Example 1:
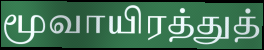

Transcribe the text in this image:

மூவாயிரத்துத்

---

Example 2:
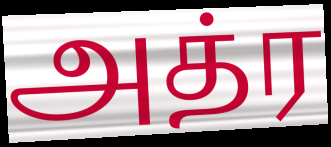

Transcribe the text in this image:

அத்ர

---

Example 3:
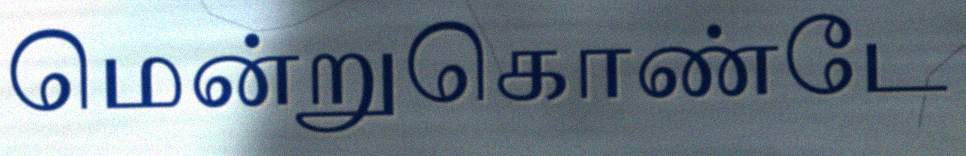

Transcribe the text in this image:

மென்றுகொண்டே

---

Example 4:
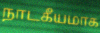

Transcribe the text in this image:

நாடகீயமாக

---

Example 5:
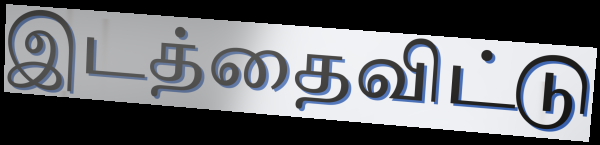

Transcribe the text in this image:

இடத்தைவிட்டு